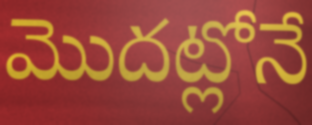
మొదట్లోనే